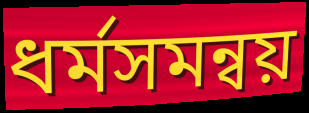
ধর্মসমন্বয়